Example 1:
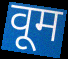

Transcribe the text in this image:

वूम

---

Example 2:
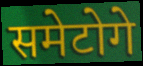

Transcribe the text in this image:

समेटोगे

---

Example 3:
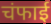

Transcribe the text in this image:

चंफाई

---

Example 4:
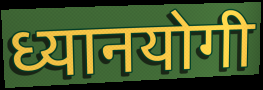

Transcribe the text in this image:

ध्यानयोगी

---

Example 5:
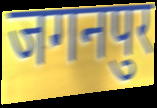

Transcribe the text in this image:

जगनपुर